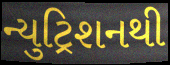
ન્યુટ્રિશનથી